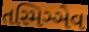
તસ્મિઞ્ઞેવ